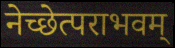
नेच्छेत्पराभवम्